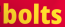
bolts